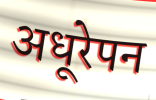
अधूरेपन